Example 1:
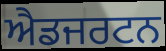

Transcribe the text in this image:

ਐਡਜਰਟਨ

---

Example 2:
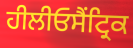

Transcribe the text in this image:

ਹੀਲੀਓਸੈਂਟ੍ਰਿਕ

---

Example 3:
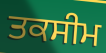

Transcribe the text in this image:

ਤਕਸੀਮ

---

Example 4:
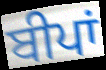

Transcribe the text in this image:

ਬੀਪਾਂ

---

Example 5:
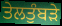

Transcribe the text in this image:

ਤੇਲਤੁੰਬੜੇ